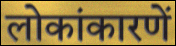
लोकांकारणें